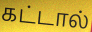
கட்டால்